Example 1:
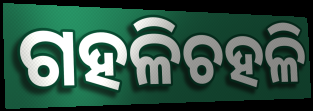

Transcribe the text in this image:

ଗହଳିଚହଳି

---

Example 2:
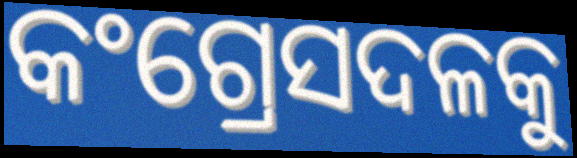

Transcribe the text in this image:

କଂଗ୍ରେସଦଳକୁ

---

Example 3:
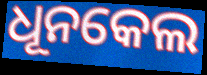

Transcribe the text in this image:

ଧୂନକେଲ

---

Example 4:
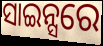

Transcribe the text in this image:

ସାଇନ୍ସରେ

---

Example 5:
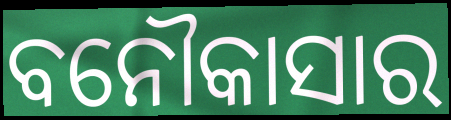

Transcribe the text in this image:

ବନୌକାସାର